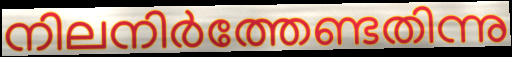
നിലനിർത്തേണ്ടതിന്നു